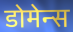
डोमेन्स